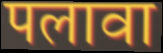
पलावा